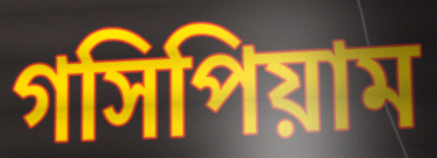
গসিপিয়াম